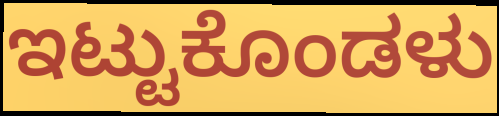
ಇಟ್ಟುಕೊಂಡಳು